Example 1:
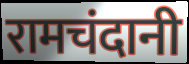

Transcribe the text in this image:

रामचंदानी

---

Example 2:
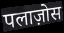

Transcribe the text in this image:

पलाज़ोस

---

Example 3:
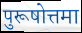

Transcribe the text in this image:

पुरूषोत्तमा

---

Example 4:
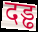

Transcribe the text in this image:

दड्ढ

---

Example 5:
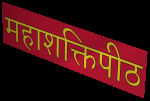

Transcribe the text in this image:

महाशक्तिपीठ